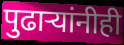
पुढाऱ्यांनीही